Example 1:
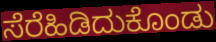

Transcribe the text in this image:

ಸೆರೆಹಿಡಿದುಕೊಂಡು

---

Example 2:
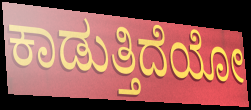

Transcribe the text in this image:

ಕಾಡುತ್ತಿದೆಯೋ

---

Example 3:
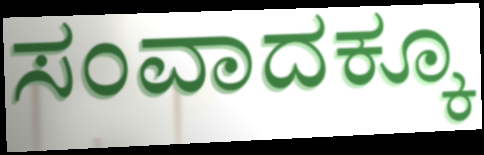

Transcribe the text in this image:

ಸಂವಾದಕ್ಕೂ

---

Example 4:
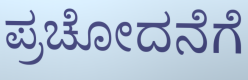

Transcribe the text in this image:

ಪ್ರಚೋದನೆಗೆ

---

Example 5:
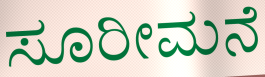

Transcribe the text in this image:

ಸೂರೀಮನೆ